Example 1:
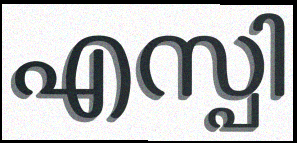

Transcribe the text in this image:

എസ്പി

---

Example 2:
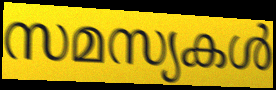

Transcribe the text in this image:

സമസ്യകൾ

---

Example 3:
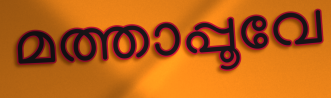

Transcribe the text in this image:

മത്താപ്പൂവേ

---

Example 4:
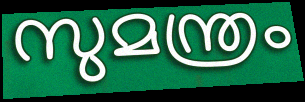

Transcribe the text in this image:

സുമന്ത്രം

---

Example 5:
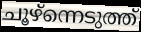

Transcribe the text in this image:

ചൂഴ്ന്നെടുത്ത്